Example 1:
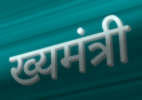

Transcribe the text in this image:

ख्यमंत्री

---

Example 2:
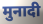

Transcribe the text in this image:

मुनादी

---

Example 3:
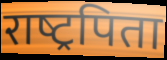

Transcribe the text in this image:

राष्ट्रपिता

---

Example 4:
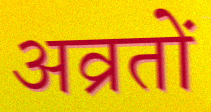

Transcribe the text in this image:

अव्रतों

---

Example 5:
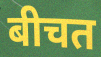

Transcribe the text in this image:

बीचत